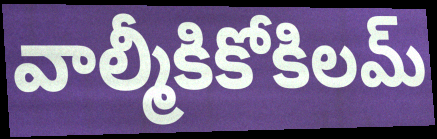
వాల్మీకికోకిలమ్